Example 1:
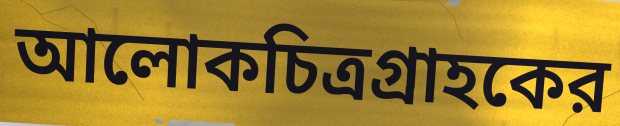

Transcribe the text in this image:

আলোকচিত্রগ্রাহকের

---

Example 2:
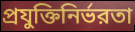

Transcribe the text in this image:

প্রযুক্তিনির্ভরতা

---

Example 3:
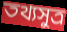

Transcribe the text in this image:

তথ্যসুত্র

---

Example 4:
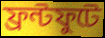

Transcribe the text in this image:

ফ্রন্টফুটে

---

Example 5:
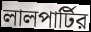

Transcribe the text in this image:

লালপার্টির